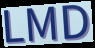
LMD